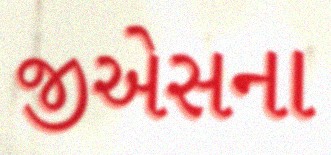
જીએસના